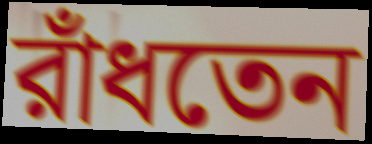
রাঁধতেন